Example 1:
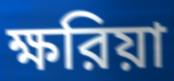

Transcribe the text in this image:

ক্ষরিয়া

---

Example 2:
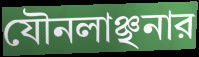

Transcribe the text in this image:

যৌনলাঞ্ছনার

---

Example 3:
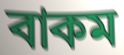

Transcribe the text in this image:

বাকম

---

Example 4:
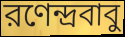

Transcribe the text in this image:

রণেন্দ্রবাবু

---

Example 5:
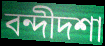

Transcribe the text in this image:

বন্দীদশা